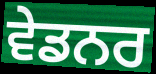
ਵੇਡਨਰ